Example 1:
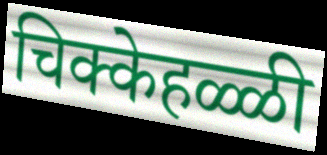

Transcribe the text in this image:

चिक्केहळ्ळी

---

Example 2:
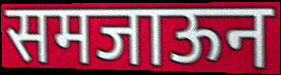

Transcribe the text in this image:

समजाऊन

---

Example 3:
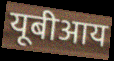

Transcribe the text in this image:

यूबीआय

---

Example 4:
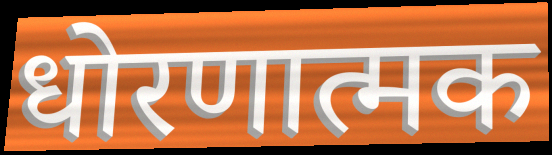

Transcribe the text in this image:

धोरणात्मक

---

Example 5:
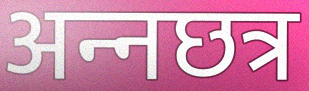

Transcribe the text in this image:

अन्नछत्र